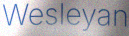
Wesleyan